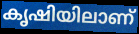
കൃഷിയിലാണ്